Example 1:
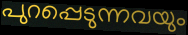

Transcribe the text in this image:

പുറപ്പെടുന്നവയും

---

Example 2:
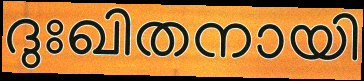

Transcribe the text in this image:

ദുഃഖിതനായി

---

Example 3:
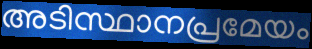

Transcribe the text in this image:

അടിസ്ഥാനപ്രമേയം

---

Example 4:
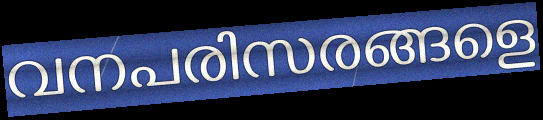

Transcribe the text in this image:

വനപരിസരങ്ങളെ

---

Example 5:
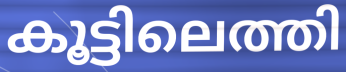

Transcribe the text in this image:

കൂട്ടിലെത്തി